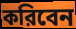
করিবেন